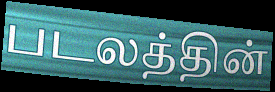
படலத்தின்